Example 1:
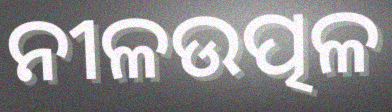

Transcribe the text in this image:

ନୀଳଉତ୍ପଳ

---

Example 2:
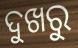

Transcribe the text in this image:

ଦୁଖରୁ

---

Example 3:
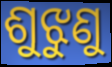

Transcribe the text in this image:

ଶୁଝୁଣୁ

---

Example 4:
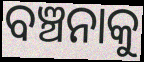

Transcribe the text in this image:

ବଞ୍ଚନାକୁ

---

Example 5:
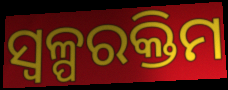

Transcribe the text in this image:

ସ୍ୱଳ୍ପରକ୍ତିମ